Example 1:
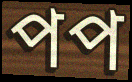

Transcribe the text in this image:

পপ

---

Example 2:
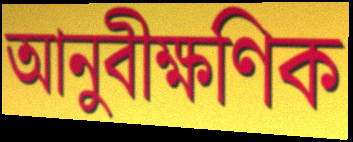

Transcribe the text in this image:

আনুবীক্ষণিক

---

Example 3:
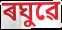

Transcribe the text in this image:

ৰঘুৱে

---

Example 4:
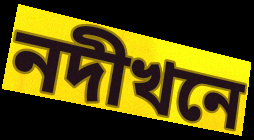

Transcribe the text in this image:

নদীখনে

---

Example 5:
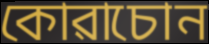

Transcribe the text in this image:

কোৱাচোন